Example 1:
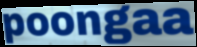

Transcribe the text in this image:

poongaa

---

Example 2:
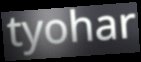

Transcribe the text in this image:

tyohar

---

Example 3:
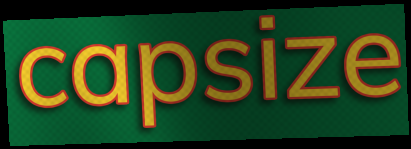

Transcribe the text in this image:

capsize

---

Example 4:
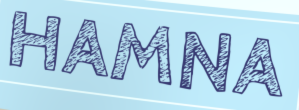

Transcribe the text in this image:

HAMNA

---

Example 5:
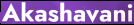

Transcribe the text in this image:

Akashavani